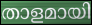
താളമായി